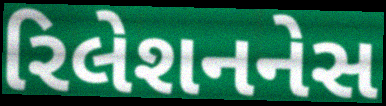
રિલેશનનેસ